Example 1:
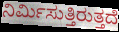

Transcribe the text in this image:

ನಿರ್ಮಿಸುತ್ತಿರುತ್ತದೆ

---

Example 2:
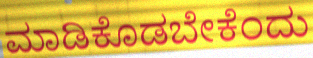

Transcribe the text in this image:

ಮಾಡಿಕೊಡಬೇಕೆಂದು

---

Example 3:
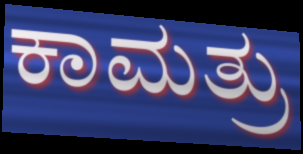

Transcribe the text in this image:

ಕಾಮತ್ರು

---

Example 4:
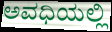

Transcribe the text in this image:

ಅವಧಿಯಲ್ಲಿ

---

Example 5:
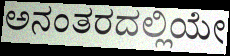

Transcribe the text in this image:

ಅನಂತರದಲ್ಲಿಯೇ